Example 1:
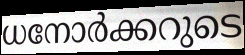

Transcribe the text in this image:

ധനോർക്കറുടെ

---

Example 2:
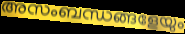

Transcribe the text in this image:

അസംബന്ധങ്ങളേയും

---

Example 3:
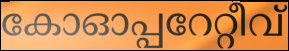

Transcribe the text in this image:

കോഓപ്പറേറ്റീവ്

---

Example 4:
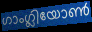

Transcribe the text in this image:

ഗാംഗ്ലിയോൺ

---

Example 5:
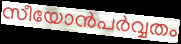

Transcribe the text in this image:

സീയോൻപർവ്വതം